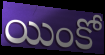
యింకో